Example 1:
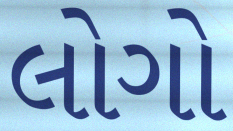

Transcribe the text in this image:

લોગો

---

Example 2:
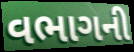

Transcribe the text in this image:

વભાગની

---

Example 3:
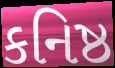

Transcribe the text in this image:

કનિષ્ઠ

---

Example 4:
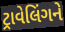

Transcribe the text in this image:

ટ્રાવેલિંગને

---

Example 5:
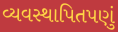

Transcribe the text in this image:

વ્યવસ્થાપિતપણું